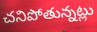
చనిపోతున్నట్లు